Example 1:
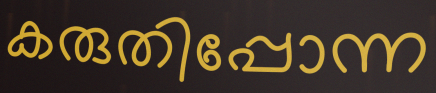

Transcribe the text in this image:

കരുതിപ്പോന്ന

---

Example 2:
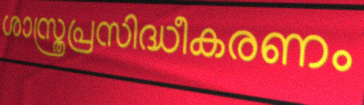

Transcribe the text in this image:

ശാസ്ത്രപ്രസിദ്ധീകരണം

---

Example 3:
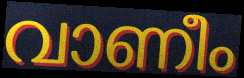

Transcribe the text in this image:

വാണീം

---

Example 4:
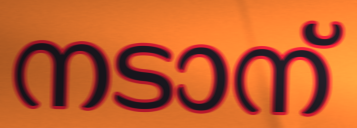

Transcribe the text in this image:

നടാന്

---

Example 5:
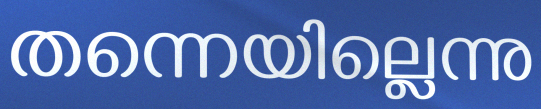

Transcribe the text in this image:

തന്നെയില്ലെന്നു